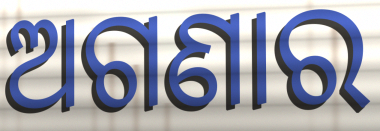
ଅଗଣାର